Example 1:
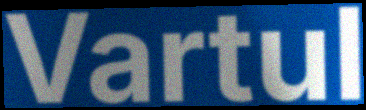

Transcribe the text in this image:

Vartul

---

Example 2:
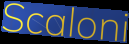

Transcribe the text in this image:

Scaloni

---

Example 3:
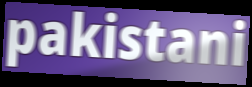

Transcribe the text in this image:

pakistani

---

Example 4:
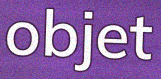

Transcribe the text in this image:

objet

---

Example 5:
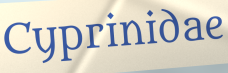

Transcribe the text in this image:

Cyprinidae